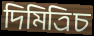
দিমিত্রিচ